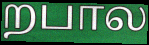
றபால